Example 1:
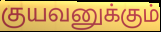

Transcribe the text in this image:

குயவனுக்கும்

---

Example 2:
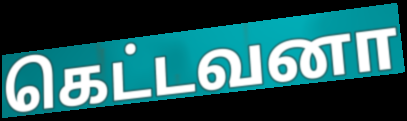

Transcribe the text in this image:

கெட்டவனா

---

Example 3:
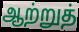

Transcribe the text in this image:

ஆற்றுத்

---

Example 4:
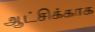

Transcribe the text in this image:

ஆட்சிக்காக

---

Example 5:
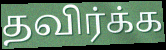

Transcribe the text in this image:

தவிர்க்க